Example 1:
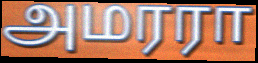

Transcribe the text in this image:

அமரரா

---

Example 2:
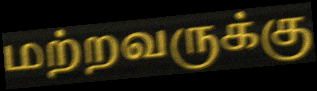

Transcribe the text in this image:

மற்றவருக்கு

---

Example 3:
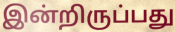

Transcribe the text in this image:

இன்றிருப்பது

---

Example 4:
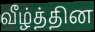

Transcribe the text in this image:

வீழ்த்தின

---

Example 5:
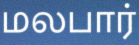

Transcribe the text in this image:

மலபார்